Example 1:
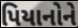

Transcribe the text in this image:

પિયાનોને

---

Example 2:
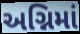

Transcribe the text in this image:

અગ્નિમાં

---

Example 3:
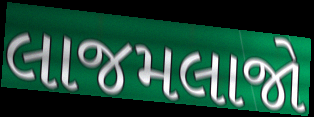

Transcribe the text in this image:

લાજમલાજો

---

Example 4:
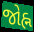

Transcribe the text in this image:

જોહ્ન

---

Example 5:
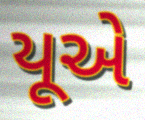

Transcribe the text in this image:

યૂએ